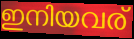
ഇനിയവര്